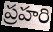
ప్రహరి